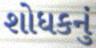
શોધકનું